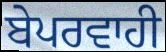
ਬੇਪਰਵਾਹੀ